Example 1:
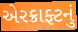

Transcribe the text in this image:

એરક્રાફ્ટનું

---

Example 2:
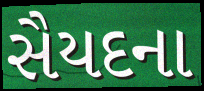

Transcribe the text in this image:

સૈયદના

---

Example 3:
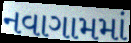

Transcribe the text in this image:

નવાગામમાં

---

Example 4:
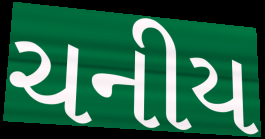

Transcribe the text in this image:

ચનીય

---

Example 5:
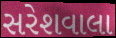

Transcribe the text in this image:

સરેશવાલા